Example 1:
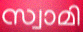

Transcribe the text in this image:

സ്വാമി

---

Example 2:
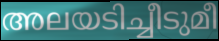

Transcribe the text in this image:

അലയടിച്ചീടുമീ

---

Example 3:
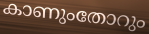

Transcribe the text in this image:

കാണുംതോറും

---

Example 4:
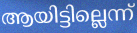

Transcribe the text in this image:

ആയിട്ടില്ലെന്ന്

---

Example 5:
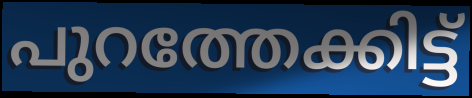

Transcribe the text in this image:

പുറത്തേക്കിട്ട്